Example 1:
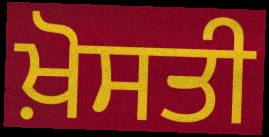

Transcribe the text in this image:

ਖ਼ੋਸਤੀ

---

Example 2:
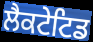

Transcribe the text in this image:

ਲੈਕਟੇਟਿਡ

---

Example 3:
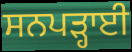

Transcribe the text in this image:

ਸਨਪੜ੍ਹਾਈ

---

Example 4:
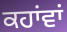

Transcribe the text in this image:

ਕਹਾਂਵਾਂ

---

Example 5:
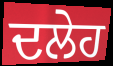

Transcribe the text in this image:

ਦਲੇਹ